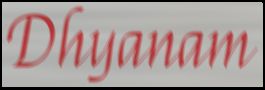
Dhyanam